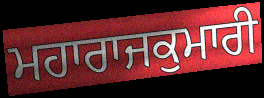
ਮਹਾਰਾਜਕੁਮਾਰੀ